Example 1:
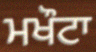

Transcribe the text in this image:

ਮਖੌਟਾ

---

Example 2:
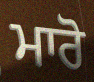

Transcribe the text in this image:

ਮਾਰੋ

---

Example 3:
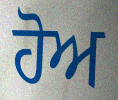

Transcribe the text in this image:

ਹੋਅ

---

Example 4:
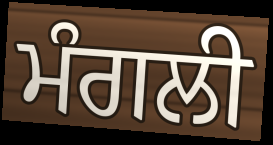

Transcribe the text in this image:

ਮੰਗਲੀ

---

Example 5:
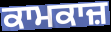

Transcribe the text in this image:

ਕਾਮਕਾਜ਼